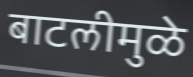
बाटलीमुळे